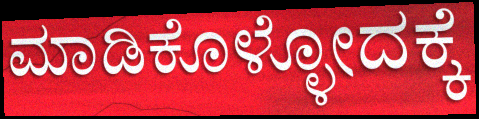
ಮಾಡಿಕೊಳ್ಳೋದಕ್ಕೆ